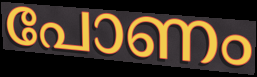
പോണം